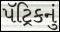
પૅટ્રિકનું